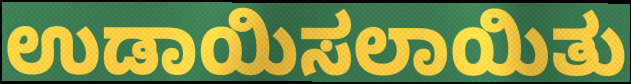
ಉಡಾಯಿಸಲಾಯಿತು